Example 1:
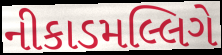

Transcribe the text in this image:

નીકાડમલ્લિગે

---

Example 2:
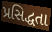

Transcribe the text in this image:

પ્રસિદ્ધતા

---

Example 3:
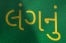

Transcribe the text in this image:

લંગનું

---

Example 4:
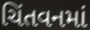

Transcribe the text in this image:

ચિંતવનમાં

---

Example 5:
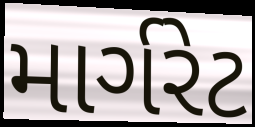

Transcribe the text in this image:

માર્ગરેટ